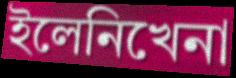
ইলেনিখেনা